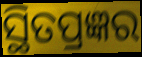
ସ୍ଥିତପ୍ରଜ୍ଞର